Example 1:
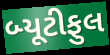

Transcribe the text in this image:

બ્યૂટીફુલ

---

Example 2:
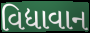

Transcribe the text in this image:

વિદ્યાવાન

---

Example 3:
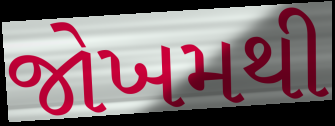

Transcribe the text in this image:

જોખમથી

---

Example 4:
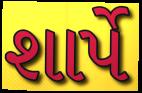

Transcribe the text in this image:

શાર્પે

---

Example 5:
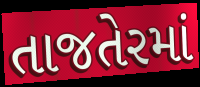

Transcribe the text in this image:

તાજતેરમાં